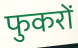
फुकरों